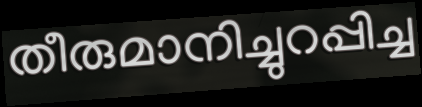
തീരുമാനിച്ചുറപ്പിച്ച